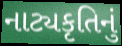
નાટ્યકૃતિનું